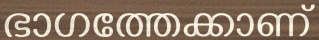
ഭാഗത്തേക്കാണ്